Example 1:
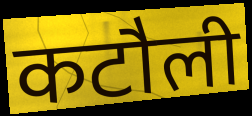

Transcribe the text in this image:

कटौली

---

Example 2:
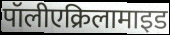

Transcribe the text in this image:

पॉलीएक्रिलामाइड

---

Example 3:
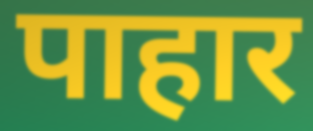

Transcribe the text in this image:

पाहार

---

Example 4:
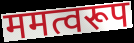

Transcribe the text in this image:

ममत्वरूप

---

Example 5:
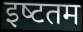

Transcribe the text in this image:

इष्‍टतम